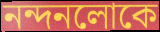
নন্দনলোকে